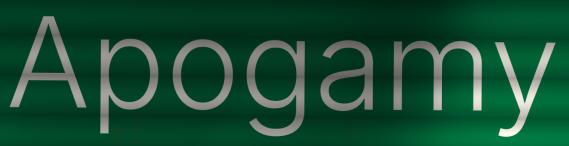
Apogamy